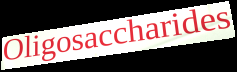
Oligosaccharides